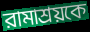
রামাশ্রয়কে